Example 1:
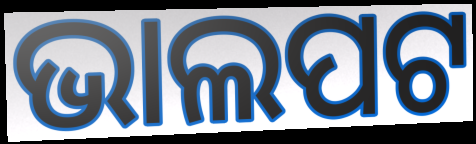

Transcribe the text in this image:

ଭାଲପଟ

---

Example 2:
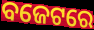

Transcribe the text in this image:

ବଜେଟରେ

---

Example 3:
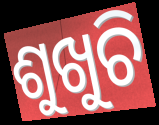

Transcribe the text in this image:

ଶୁଖୁଚି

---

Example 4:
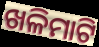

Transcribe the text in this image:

ଖଳିମାଟି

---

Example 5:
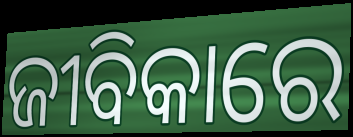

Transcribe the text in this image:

ଜୀବିକାରେ